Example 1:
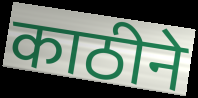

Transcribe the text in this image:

काठीने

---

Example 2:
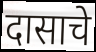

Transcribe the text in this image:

दासाचे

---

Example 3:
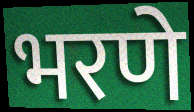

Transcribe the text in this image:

भरणे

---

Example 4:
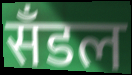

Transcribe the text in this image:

सँडल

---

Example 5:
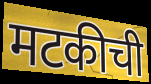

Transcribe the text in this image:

मटकीची